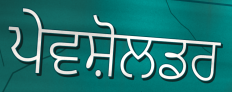
ਪੇਵਸ਼ੋਲਡਰ